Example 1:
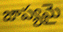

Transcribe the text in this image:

జాప్యమై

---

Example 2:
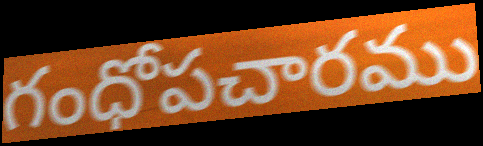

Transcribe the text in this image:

గంధోపచారము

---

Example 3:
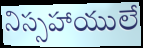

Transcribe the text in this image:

నిస్సహాయులే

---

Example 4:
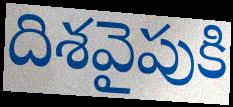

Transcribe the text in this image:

దిశవైపుకి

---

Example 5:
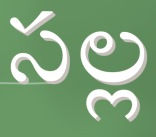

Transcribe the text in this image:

సల్ల